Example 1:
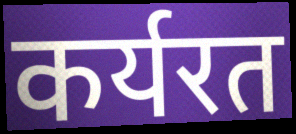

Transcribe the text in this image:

कर्यरत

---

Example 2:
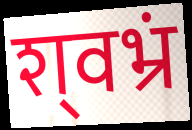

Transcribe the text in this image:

श्वभ्रं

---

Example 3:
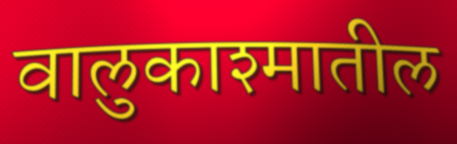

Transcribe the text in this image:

वालुकाश्मातील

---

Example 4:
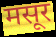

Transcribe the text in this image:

मसूर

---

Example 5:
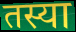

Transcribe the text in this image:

तस्या